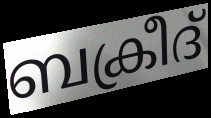
ബക്രീദ്